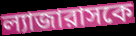
ল্যাজারাসকে